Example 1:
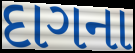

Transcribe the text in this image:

દાગના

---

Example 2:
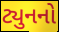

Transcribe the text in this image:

ટ્યુનનો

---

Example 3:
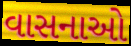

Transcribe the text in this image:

વાસનાઓ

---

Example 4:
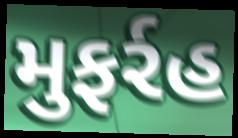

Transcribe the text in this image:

મુફર્રહ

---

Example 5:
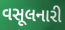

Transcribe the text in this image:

વસૂલનારી